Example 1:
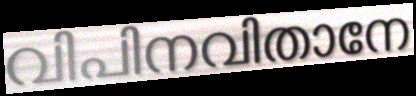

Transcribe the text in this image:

വിപിനവിതാനേ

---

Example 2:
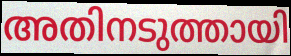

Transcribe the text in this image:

അതിനടുത്തായി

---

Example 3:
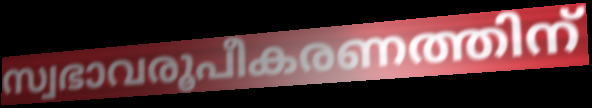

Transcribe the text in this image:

സ്വഭാവരൂപീകരണത്തിന്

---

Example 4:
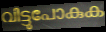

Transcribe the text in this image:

വിട്ടുപോകുക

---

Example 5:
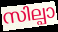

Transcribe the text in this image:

സില്പാ